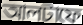
আলটাফে